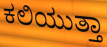
ಕಲಿಯುತ್ತಾ